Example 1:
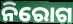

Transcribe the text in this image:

ନିରୋଗ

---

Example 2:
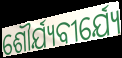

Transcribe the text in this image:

ଶୌର୍ଯ୍ୟବୀର୍ଯ୍ୟେ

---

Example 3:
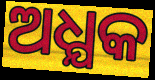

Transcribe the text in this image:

ଅଧ୍ଯକ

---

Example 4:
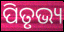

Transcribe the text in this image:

ପିତୃଭ୍ୟ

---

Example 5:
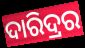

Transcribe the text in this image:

ଦାରିଦ୍ରର